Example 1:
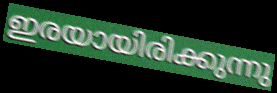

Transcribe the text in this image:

ഇരയായിരിക്കുന്നു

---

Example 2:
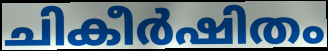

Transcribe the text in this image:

ചികീർഷിതം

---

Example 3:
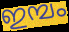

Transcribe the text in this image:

ഇമ്പം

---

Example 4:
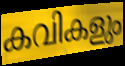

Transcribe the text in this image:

കവികളും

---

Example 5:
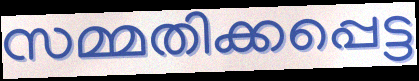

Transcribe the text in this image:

സമ്മതിക്കപ്പെട്ട